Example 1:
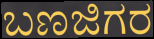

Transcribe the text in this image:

ಬಣಜಿಗರ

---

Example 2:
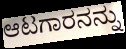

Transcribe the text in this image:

ಆಟಗಾರನನ್ನು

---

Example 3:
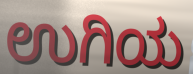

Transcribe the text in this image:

ಉಗಿಯ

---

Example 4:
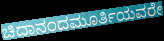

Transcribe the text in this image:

ಚಿದಾನಂದಮೂರ್ತಿಯವರೇ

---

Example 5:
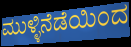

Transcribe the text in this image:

ಮುಳ್ಳಿನೆಡೆಯಿಂದ